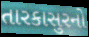
તારકાસુરનો